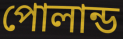
পোলান্ড